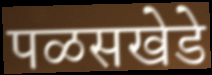
पळसखेडे